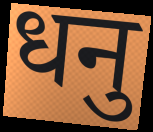
धनु